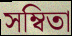
সম্বিতা